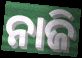
ନାଜି